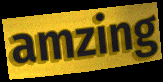
amzing